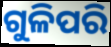
ଗୁଳିପରି